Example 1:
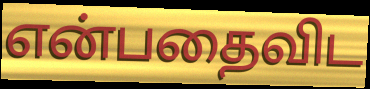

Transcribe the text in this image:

என்பதைவிட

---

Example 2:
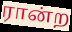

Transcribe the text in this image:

ரான்ற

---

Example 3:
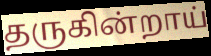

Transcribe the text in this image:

தருகின்றாய்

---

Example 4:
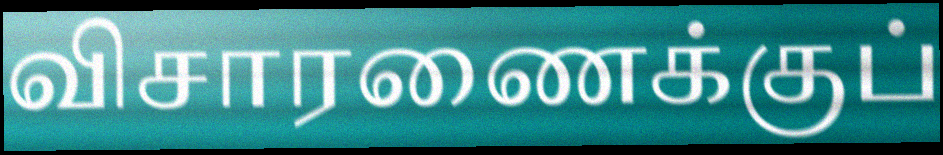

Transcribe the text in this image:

விசாரணைக்குப்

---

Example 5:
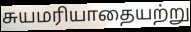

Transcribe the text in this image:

சுயமரியாதையற்று